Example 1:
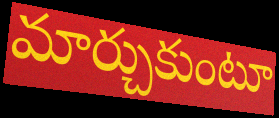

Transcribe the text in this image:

మార్చుకుంటూ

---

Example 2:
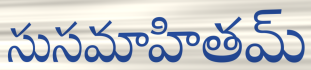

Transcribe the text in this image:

సుసమాహితమ్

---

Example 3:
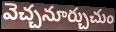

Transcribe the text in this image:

వెచ్చనూర్చుచుం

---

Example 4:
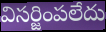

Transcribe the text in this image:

విసర్జింపలేదు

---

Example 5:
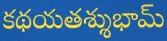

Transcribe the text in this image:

కథయతశ్శుభామ్